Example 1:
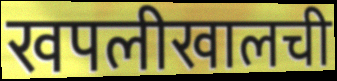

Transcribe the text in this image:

खपलीखालची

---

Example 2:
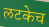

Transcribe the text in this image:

लटकेच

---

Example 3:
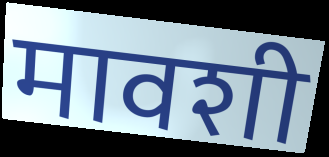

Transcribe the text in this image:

मावशी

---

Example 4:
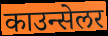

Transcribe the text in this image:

काउन्सेलर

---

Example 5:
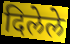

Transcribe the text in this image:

दिलेले